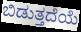
ಬಿಡುತ್ತದೆಯೆ